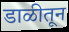
डाळीतून